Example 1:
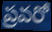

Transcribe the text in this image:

ప్రవరో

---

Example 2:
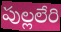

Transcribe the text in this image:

పుల్లలేరి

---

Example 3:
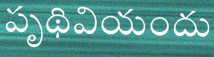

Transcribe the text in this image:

పృథివియందు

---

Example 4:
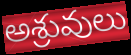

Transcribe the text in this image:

అశ్రువులు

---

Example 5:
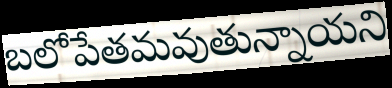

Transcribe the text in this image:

బలోపేతమవుతున్నాయని